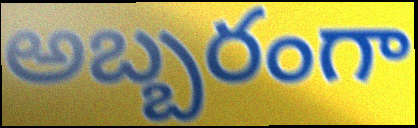
అబ్బరంగా